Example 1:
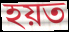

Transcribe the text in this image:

হয়ত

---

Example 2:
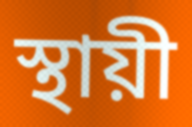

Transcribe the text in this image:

স্থায়ী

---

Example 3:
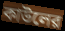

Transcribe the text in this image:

কাউলের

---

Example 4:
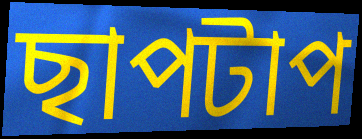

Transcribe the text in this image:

ছাপটাপ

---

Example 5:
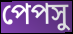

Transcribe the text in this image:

পেপসু